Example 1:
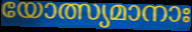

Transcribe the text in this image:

യോത്സ്യമാനാഃ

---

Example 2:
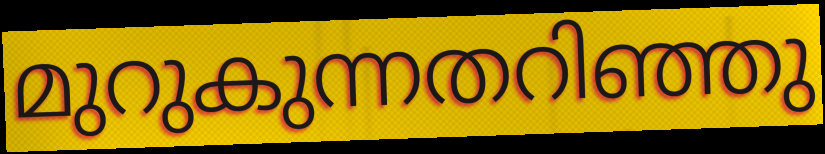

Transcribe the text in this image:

മുറുകുന്നതറിഞ്ഞു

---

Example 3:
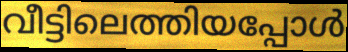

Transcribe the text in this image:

വീട്ടിലെത്തിയപ്പോൾ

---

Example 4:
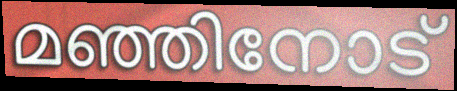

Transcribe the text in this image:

മഞ്ഞിനോട്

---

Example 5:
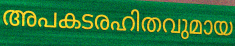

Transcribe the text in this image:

അപകടരഹിതവുമായ